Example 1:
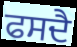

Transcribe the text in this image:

ਫਸਦੈ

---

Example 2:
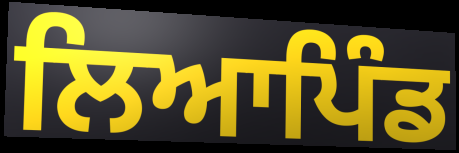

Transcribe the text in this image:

ਲਿਆਪਿੰਡ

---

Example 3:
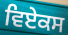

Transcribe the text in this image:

ਵਿਏਕਸ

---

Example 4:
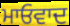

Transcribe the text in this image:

ਮਾਓਵਾਦ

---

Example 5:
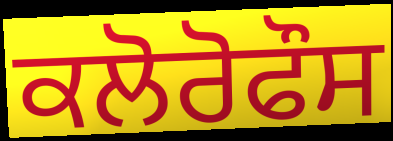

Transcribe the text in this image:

ਕਲੋਰੋਫੌਸ